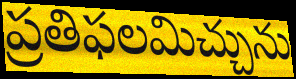
ప్రతిఫలమిచ్చును